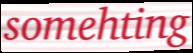
somehting